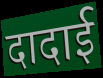
दादाई